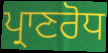
ਪ੍ਰਾਣਰੋਧ